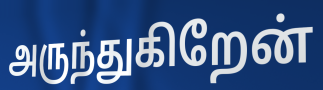
அருந்துகிறேன்